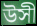
উসী